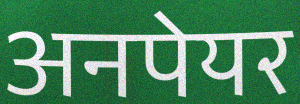
अनपेयर